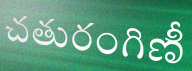
చతురంగిణీ